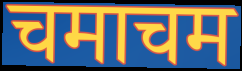
चमाचम